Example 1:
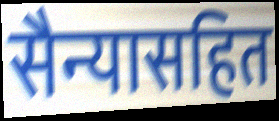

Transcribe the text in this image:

सैन्यासहित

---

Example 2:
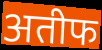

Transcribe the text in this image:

अतीफ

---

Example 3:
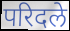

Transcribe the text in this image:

परिदले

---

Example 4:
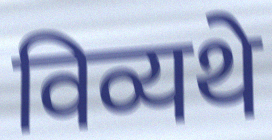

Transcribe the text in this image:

विव्यथे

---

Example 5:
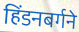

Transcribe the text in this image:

हिंडनबर्गने